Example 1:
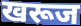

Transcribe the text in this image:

खरूज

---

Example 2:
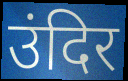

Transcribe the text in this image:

उंदिर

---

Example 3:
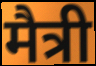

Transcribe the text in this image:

मैत्री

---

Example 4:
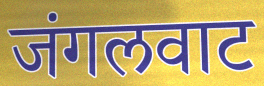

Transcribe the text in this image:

जंगलवाट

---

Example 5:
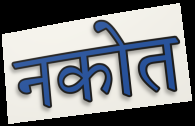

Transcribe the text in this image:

नकोत